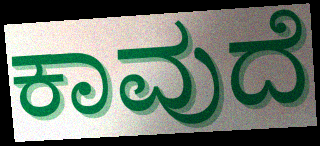
ಕಾವುದೆ